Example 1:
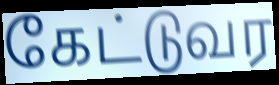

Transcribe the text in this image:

கேட்டுவர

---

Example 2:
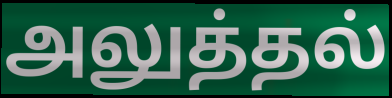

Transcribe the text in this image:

அலுத்தல்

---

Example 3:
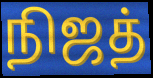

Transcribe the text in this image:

நிஜத்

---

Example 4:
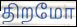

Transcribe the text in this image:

திறமோ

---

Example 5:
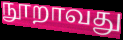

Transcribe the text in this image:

நூறாவது